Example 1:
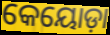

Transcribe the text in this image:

କେୟୋଡ଼ା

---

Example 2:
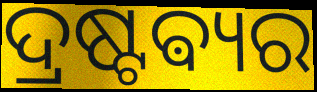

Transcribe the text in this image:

ଦ୍ରଷ୍ଟଵ୍ୟର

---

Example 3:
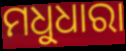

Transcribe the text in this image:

ମଧୁଧାରା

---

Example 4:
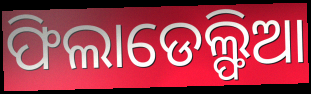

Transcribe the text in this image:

ଫିଲାଡେଲ୍ଫିଆ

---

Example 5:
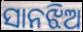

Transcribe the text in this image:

ସାନଝିଅ